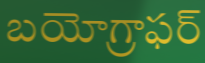
బయోగ్రాఫర్